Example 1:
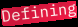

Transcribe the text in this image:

Defining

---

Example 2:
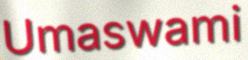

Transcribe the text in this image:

Umaswami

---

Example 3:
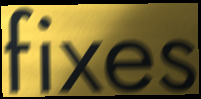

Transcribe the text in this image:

fixes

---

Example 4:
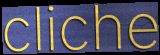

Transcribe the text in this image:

cliche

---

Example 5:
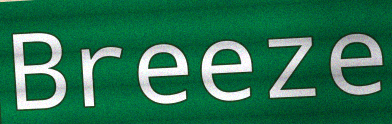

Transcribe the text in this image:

Breeze